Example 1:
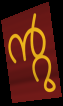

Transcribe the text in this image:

ന്റു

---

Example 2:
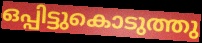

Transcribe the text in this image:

ഒപ്പിട്ടുകൊടുത്തു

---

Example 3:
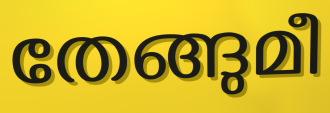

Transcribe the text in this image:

തേങ്ങുമീ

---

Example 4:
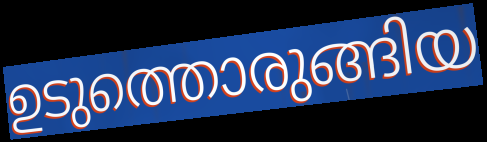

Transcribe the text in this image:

ഉടുത്തൊരുങ്ങിയ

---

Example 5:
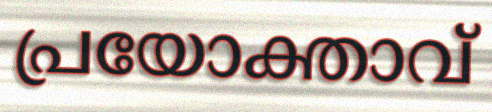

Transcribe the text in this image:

പ്രയോക്താവ്